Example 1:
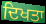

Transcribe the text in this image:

ਦਿਖਤਾ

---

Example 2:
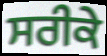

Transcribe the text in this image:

ਸਰੀਕੇ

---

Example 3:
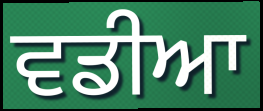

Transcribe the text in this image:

ਵਡੀਆ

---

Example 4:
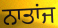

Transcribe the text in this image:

ਨਾਤਾਂਜ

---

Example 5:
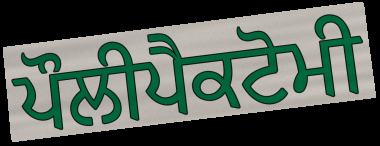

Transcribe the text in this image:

ਪੌਲੀਪੈਕਟੋਮੀ